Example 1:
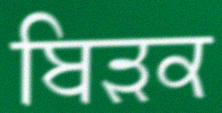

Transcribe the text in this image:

ਬਿੜਕ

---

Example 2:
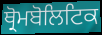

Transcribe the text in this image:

ਥ੍ਰੋਮਬੋਲਿਟਿਕ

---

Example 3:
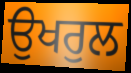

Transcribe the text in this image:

ਉਖਰੁਲ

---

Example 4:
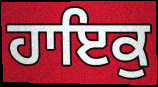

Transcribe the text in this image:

ਹਾਇਕੁ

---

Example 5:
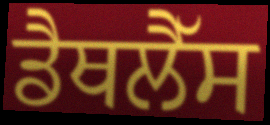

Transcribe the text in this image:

ਡੈਥਲੈੱਸ